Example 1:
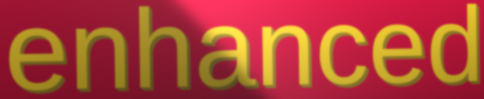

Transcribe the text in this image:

enhanced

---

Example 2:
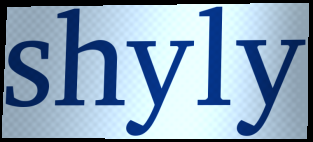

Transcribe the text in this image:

shyly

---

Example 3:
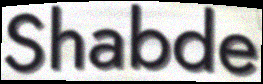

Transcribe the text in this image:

Shabde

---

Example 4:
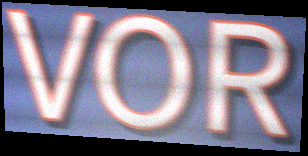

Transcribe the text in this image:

VOR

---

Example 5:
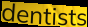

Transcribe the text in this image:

dentists